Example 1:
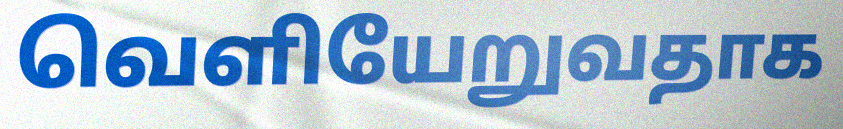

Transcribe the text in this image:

வெளியேறுவதாக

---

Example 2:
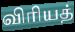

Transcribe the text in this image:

விரியத்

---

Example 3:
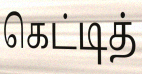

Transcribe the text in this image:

கெட்டித்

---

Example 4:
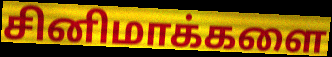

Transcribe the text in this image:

சினிமாக்களை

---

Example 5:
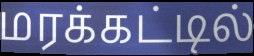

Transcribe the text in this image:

மரக்கட்டில்